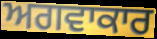
ਅਗਵਾਕਾਰ